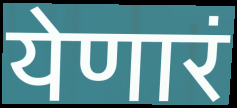
येणारं